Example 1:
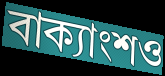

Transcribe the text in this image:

বাক্যাংশও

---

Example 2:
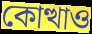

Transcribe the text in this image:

কোত্থাও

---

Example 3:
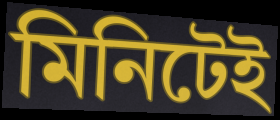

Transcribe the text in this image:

মিনিটেই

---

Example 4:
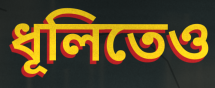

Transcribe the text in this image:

ধূলিতেও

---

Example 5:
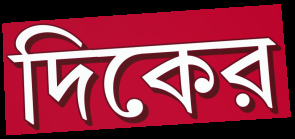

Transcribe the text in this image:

দিকের